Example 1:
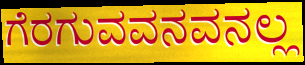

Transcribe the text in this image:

ಗೆರಗುವವನವನಲ್ಲ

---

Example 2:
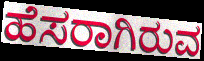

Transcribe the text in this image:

ಹೆಸರಾಗಿರುವ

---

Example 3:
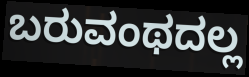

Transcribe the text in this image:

ಬರುವಂಥದಲ್ಲ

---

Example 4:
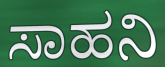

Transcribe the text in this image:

ಸಾಹನಿ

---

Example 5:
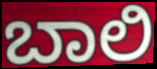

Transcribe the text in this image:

ಬಾಲಿ